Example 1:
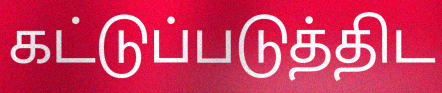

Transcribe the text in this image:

கட்டுப்படுத்திட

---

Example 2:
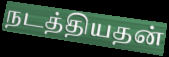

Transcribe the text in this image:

நடத்தியதன்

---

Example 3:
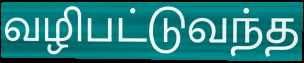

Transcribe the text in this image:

வழிபட்டுவந்த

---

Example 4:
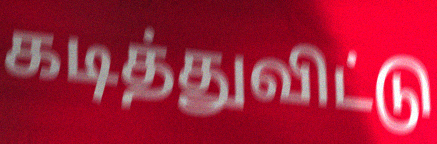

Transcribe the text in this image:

கடித்துவிட்டு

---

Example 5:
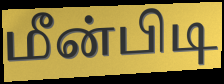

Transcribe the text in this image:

மீன்பிடி